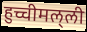
हुच्चीमल्ली